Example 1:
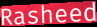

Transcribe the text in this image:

Rasheed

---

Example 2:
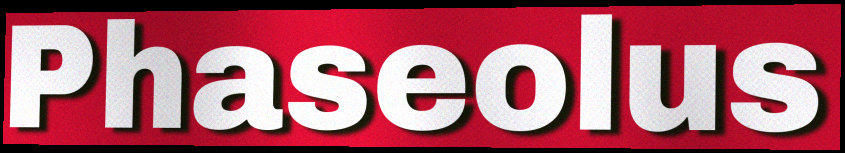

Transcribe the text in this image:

Phaseolus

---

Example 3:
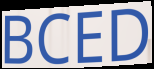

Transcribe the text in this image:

BCED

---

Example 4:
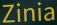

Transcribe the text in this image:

Zinia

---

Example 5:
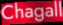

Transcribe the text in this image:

Chagall